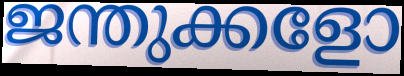
ജന്തുക്കളോ